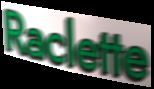
Raclette